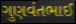
ગુણવંતભાઈ